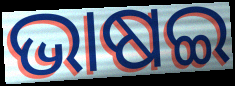
ଭାଷଇ